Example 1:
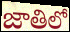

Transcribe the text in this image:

జాతిలో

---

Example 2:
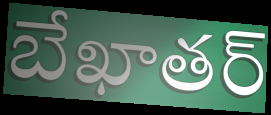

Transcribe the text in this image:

బేఖాతర్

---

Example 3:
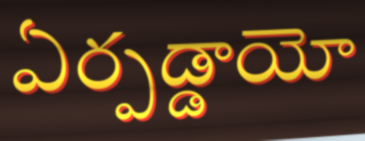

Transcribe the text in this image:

ఏర్పడ్డాయో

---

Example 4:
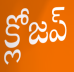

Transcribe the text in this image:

క్లోజప్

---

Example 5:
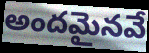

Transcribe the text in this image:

అందమైనవే